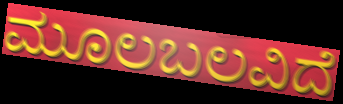
ಮೂಲಬಲವಿದೆ